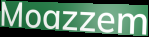
Moazzem